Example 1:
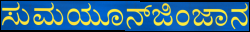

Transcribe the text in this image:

ಸುಮಯೂನ್‍ಜಿಂಜಾನ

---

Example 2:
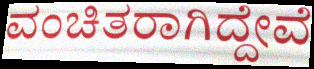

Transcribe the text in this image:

ವಂಚಿತರಾಗಿದ್ದೇವೆ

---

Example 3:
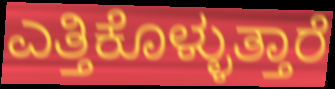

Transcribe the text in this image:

ಎತ್ತಿಕೊಳ್ಳುತ್ತಾರೆ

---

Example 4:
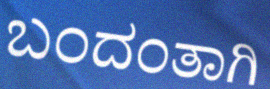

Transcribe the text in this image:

ಬಂದಂತಾಗಿ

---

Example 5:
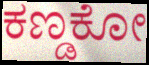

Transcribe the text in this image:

ಕಣ್ಡಕೋ